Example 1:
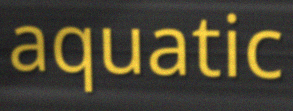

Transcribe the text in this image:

aquatic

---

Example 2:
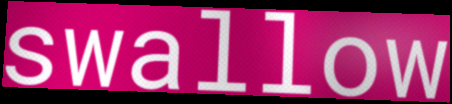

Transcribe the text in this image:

swallow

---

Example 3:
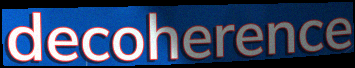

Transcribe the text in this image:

decoherence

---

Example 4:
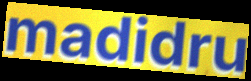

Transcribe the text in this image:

madidru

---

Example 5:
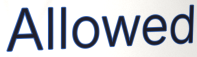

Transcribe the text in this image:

Allowed